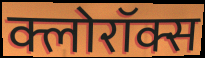
क्लोरॉक्स